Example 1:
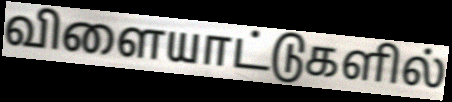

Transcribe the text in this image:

விளையாட்டுகளில்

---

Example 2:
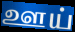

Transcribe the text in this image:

ஊய்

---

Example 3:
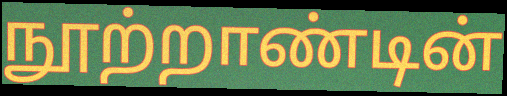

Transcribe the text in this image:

நூற்றாண்டின்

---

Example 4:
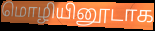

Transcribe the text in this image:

மொழியினூடாக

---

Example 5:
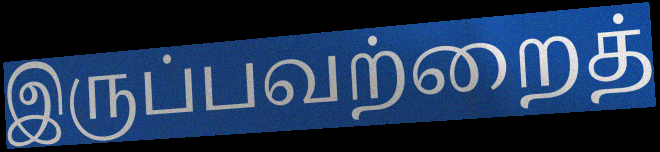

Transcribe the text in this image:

இருப்பவற்றைத்